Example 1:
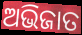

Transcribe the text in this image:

ଅଭିଜାତ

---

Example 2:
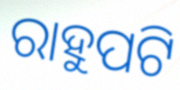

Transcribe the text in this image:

ରାହୁପଟି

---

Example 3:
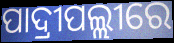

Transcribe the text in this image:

ପାଦ୍ରୀପଲ୍ଲୀରେ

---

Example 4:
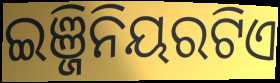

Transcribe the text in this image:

ଇଞ୍ଜିନିୟରଟିଏ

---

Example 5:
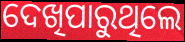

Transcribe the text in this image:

ଦେଖିପାରୁଥିଲେ